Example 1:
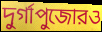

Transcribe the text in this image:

দুর্গাপুজোরও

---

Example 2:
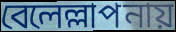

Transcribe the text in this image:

বেলেল্লাপনায়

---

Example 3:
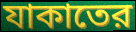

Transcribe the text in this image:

যাকাতের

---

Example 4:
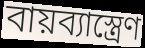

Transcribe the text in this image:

বায়ব্যাস্ত্রেণ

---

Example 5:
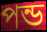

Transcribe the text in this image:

পন্ড